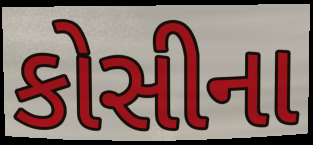
કોસીના